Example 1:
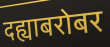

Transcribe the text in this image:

दह्याबरोबर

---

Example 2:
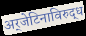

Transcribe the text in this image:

अर्जेटिनाविरुद्ध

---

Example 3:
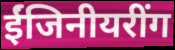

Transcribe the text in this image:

ईंजिनीयरींग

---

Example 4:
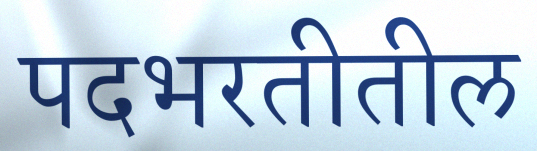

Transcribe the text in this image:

पदभरतीतील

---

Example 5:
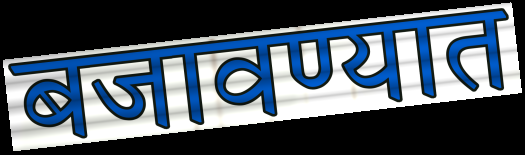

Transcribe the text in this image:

बजावण्यात